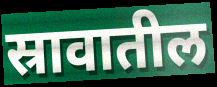
स्रावातील